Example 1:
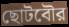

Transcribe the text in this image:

ছোটবৌর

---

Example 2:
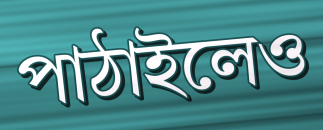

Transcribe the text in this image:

পাঠাইলেও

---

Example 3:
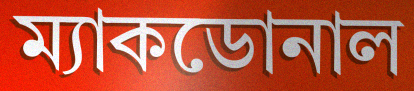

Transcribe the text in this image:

ম্যাকডোনাল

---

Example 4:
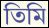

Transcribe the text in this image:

তিমি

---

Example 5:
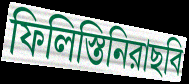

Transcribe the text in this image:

ফিলিস্তিনিরাছবি